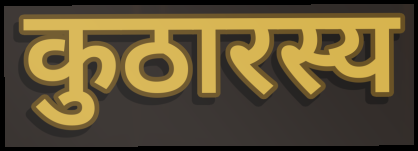
कुठारस्य